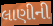
લાણીની